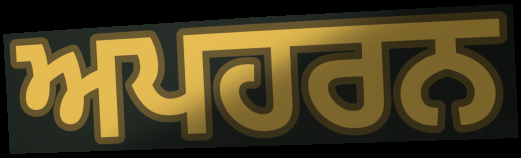
ਅਪਹਰਨ